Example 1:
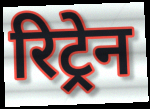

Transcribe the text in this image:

रिट्रेन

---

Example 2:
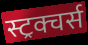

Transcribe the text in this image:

स्ट्रक्चर्स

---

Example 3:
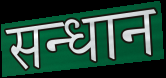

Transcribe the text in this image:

सन्धान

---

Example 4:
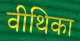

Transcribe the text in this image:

वीथिका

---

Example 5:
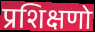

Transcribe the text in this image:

प्रशिक्षणो